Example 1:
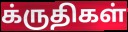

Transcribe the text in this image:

க்ருதிகள்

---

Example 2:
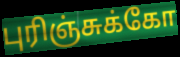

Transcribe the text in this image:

புரிஞ்சுக்கோ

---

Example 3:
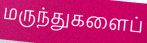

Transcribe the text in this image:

மருந்துகளைப்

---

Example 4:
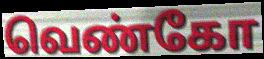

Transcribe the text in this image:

வெண்கோ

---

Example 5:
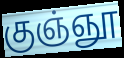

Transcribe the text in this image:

குஞ்ஞூ